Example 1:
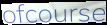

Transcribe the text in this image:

ofcourse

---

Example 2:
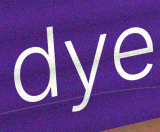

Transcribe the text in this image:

dye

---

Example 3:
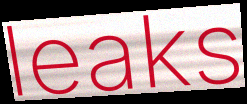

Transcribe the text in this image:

leaks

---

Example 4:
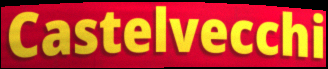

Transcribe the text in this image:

Castelvecchi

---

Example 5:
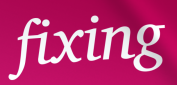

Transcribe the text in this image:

fixing